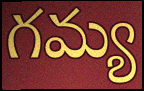
గమ్య